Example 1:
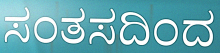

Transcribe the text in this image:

ಸಂತಸದಿಂದ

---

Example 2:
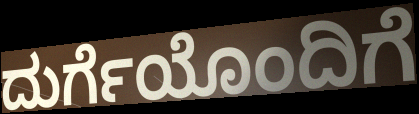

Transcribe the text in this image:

ದುರ್ಗೆಯೊಂದಿಗೆ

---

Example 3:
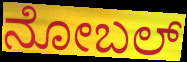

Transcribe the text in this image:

ನೋಬಲ್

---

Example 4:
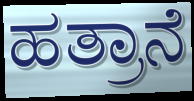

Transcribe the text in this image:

ಹತ್ರಾನೆ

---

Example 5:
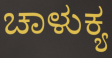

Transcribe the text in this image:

ಚಾಳುಕ್ಯ